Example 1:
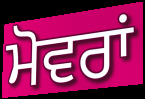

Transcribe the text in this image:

ਮੋਵਰਾਂ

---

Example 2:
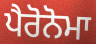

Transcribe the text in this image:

ਪੈਰੋਨੋਮਾ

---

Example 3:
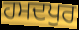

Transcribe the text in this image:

ਹਮਦਪੁਰ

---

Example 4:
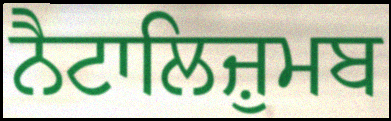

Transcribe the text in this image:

ਨੈਟਾਲਿਜ਼ੁਮਬ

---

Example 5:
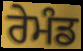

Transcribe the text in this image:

ਰੇਮੰਡ